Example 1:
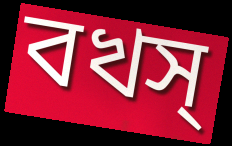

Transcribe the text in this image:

বখস্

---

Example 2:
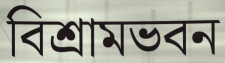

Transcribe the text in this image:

বিশ্রামভবন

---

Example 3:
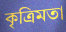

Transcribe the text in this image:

কৃত্রিমতা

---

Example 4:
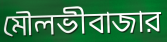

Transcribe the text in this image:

মৌলভীবাজার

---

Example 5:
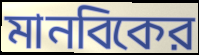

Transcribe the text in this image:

মানবিকের